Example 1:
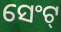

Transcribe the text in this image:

ସେଂଟ୍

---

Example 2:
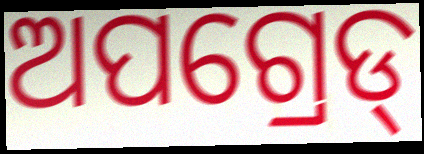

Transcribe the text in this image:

ଅପଗ୍ରେଡ୍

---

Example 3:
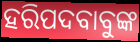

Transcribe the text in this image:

ହରିପଦବାବୁଙ୍କ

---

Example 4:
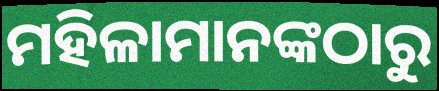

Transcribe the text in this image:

ମହିଳାମାନଙ୍କଠାରୁ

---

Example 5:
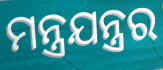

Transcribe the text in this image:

ମନ୍ତ୍ରଯନ୍ତ୍ରର